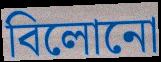
বিলোনো